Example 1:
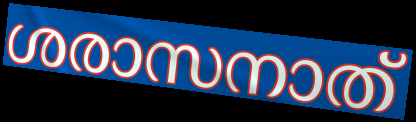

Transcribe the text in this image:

ശരാസനാത്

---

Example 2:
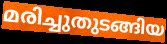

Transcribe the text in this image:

മരിച്ചുതുടങ്ങിയ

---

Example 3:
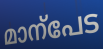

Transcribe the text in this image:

മാന്പേട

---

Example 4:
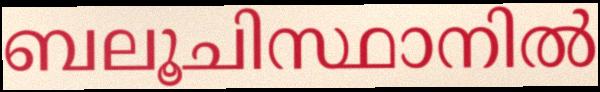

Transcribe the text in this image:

ബലൂചിസ്ഥാനിൽ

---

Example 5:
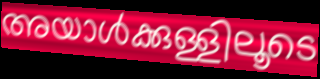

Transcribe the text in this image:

അയാൾക്കുള്ളിലൂടെ